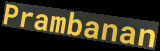
Prambanan